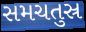
સમચતુસ્ર